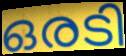
ഒരടി